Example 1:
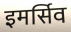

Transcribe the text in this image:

इमर्सिव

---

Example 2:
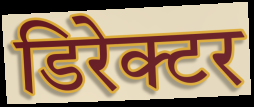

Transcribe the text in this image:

डिरेक्टर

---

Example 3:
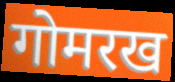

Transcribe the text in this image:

गोमरख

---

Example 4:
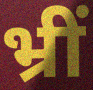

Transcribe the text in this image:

भ्रीं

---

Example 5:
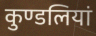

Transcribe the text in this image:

कुण्डलियां